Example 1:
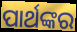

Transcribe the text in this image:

ପାର୍ଥଙ୍କର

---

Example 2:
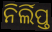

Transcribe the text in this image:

ନିର୍ଲିପ୍ତ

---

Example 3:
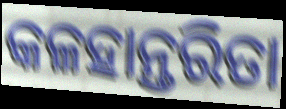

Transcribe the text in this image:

କଳହାନ୍ତରିତା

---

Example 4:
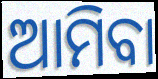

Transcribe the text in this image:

ଆମିବା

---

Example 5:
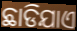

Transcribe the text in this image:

ଛାଡିଯାଏ